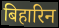
बिहारिन